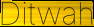
Ditwah